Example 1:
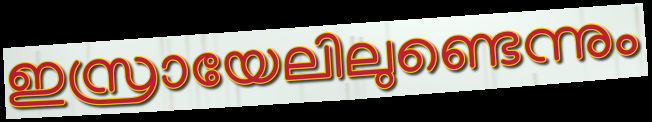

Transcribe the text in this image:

ഇസ്രായേലിലുണ്ടെന്നും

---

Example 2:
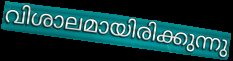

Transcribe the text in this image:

വിശാലമായിരിക്കുന്നു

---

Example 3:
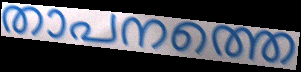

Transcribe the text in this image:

താപനത്തെ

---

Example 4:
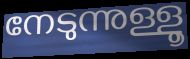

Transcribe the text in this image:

നേടുന്നുള്ളൂ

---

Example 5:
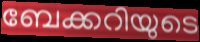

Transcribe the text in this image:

ബേക്കറിയുടെ